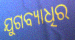
ଯୁଗବ୍ୟାଧିର